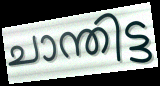
ചാന്തിട്ട